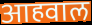
आहवाल